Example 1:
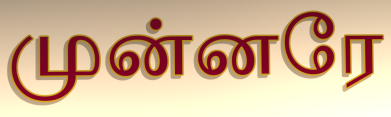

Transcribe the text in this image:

முன்னரே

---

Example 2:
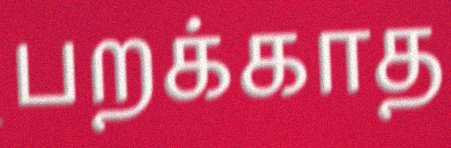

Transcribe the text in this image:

பறக்காத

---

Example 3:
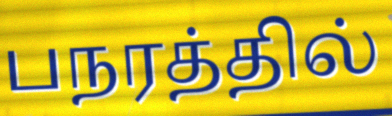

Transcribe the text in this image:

பநரத்தில்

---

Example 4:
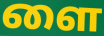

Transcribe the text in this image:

ளை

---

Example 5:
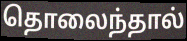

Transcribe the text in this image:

தொலைந்தால்